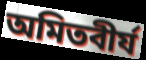
অমিতবীর্য